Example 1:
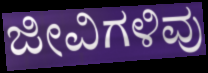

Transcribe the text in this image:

ಜೀವಿಗಳಿವು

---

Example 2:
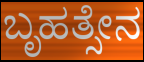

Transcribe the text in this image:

ಬೃಹತ್ಸೇನ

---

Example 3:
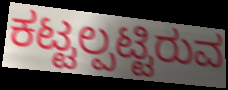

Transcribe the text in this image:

ಕಟ್ಟಲ್ಪಟ್ಟಿರುವ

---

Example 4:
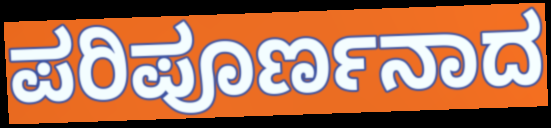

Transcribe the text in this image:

ಪರಿಪೂರ್ಣನಾದ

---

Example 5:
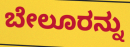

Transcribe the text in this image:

ಬೇಲೂರನ್ನು